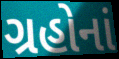
ગ્રહોનાં